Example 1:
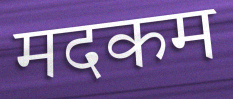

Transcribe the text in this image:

मदकम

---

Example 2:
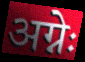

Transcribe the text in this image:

अग्नेः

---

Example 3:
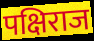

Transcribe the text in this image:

पक्षिराज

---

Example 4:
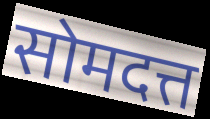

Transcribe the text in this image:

सोमदत्त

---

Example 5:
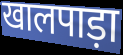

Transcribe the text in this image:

खालपाड़ा